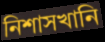
নিশাসখানি